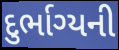
દુર્ભાગ્યની